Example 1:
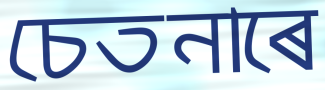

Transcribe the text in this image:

চেতনাৰে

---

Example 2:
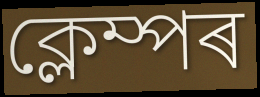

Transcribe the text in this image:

ক্লেম্পৰ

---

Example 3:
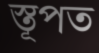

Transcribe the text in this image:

স্তূপত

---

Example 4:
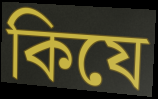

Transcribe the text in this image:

কিযে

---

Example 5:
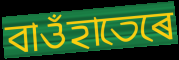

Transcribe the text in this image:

বাওঁহাতেৰে